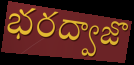
భరద్వాజొ